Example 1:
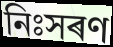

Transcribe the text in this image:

নিঃসৰণ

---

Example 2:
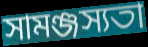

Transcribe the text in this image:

সামঞ্জস্যতা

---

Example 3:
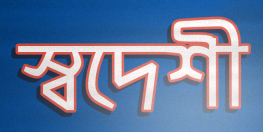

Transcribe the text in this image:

স্বদেশী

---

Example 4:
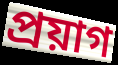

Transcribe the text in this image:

প্ৰয়াগ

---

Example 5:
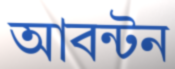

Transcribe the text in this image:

আবন্টন